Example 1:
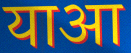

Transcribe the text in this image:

याआ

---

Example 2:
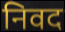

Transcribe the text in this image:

निवद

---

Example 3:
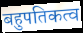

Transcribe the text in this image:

बहुपतिकत्व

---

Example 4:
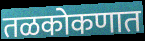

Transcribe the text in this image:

तळकोकणात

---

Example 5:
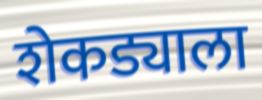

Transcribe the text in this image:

शेकड्याला